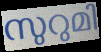
സുറുമി